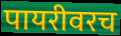
पायरीवरच